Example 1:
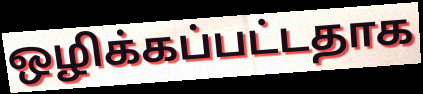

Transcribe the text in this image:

ஒழிக்கப்பட்டதாக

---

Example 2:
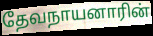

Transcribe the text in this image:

தேவநாயனாரின்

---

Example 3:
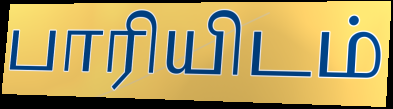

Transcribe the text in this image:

பாரியிடம்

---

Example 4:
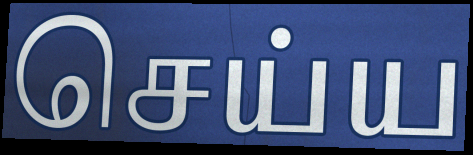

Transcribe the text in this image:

செய்ய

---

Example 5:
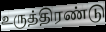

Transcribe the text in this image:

உருத்திரண்டு